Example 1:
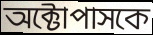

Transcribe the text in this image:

অক্টোপাসকে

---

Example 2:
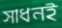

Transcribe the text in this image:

সাধনই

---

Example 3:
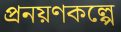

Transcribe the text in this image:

প্রনয়ণকল্পে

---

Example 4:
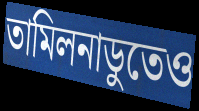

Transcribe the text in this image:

তামিলনাডুতেও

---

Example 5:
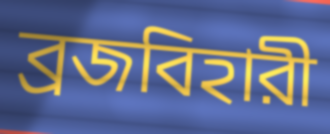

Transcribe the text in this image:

ব্রজবিহারী